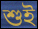
শুই